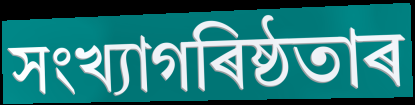
সংখ্যাগৰিষ্ঠতাৰ